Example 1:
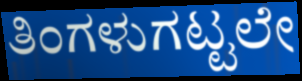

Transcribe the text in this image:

ತಿಂಗಳುಗಟ್ಟಲೇ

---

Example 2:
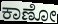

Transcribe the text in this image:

ಕಾಣೋ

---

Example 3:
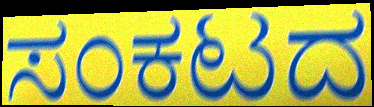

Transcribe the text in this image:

ಸಂಕಟದ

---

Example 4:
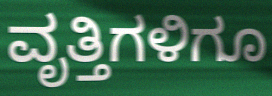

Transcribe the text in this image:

ವೃತ್ತಿಗಳಿಗೂ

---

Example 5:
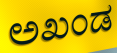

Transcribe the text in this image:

ಅಖಂಡ